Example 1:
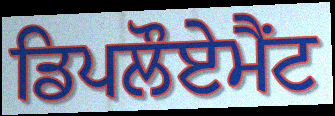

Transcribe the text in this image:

ਡਿਪਲੌਏਮੈਂਟ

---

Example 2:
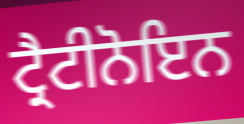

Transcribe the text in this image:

ਟ੍ਰੈਟੀਨੋਇਨ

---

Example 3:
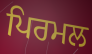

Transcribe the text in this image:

ਪਿਰਮਲ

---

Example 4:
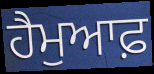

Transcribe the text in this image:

ਹੈਮੁਆਫ਼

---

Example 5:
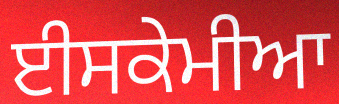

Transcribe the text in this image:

ਈਸਕੇਮੀਆ